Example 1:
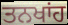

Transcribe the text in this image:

ਤਨਖਾਂਹ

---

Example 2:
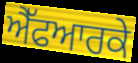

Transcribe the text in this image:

ਐੱਫਆਰਕੇ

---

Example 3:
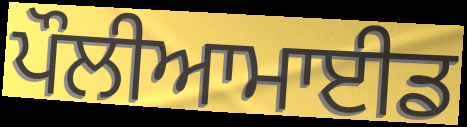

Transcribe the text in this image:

ਪੌਲੀਆਮਾਈਡ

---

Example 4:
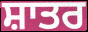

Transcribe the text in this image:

ਸ਼ਾਤਰ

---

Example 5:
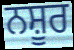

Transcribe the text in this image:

ਨਸ਼ੂਰ